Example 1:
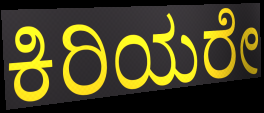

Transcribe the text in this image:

ಕಿರಿಯರೇ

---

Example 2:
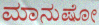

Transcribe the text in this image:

ಮಾನುಷೋ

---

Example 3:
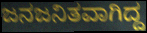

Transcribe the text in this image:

ಜನಜನಿತವಾಗಿದ್ದ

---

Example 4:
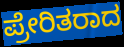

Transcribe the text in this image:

ಪ್ರೇರಿತರಾದ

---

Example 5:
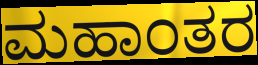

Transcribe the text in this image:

ಮಹಾಂತರ